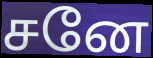
சனே